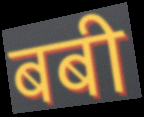
बबी